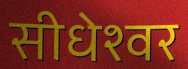
सीधेश्वर